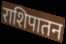
राशिपातन